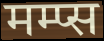
मम्प्स